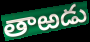
తాఱడు